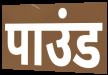
पाउंड